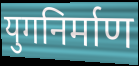
युगनिर्माण